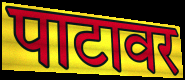
पाटावर